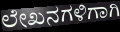
ಲೇಖನಗಳಿಗಾಗಿ